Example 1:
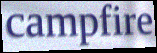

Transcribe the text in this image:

campfire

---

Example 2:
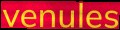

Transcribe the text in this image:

venules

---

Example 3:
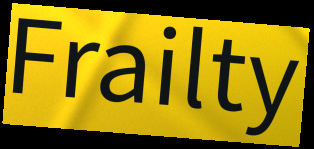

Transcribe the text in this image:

Frailty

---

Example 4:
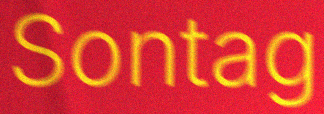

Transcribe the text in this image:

Sontag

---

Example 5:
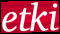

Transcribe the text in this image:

etki